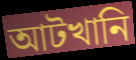
আটখানি